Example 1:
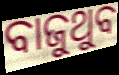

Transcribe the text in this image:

ବାଜୁଥୁବ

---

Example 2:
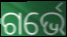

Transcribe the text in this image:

ଗର୍ଭେ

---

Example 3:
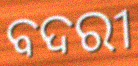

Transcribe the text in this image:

ବଦରୀ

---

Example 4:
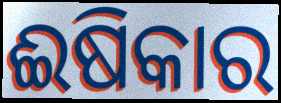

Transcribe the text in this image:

ଈଷିକାର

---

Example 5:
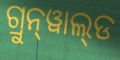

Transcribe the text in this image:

ଗ୍ରୁନ୍‌ୱାଲ୍‌ଡ